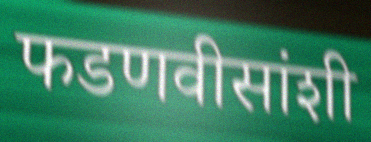
फडणवीसांशी